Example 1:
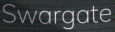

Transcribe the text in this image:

Swargate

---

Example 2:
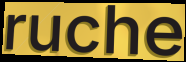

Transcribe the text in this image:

ruche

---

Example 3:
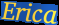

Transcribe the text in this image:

Erica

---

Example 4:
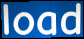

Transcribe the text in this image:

load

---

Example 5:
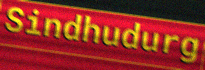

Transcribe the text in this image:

Sindhudurg